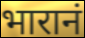
भारानं